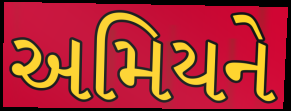
અમિયને